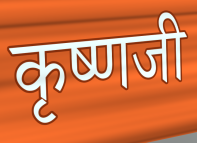
कृष्णजी